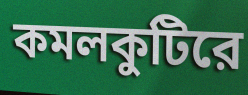
কমলকুটিরে